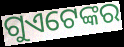
ଗୁଏଟେଙ୍କର